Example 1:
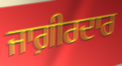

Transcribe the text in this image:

ਜਾਗ਼ੀਰਦਾਰ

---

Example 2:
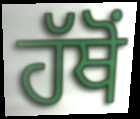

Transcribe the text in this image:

ਹੱਥੋਂ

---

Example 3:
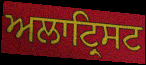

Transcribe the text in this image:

ਅਲਾਟ੍ਰਿਸਟ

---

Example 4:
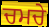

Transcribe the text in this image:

ਚਮਚੇ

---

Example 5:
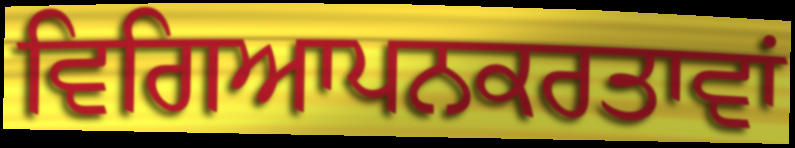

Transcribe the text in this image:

ਵਿਗਿਆਪਨਕਰਤਾਵਾਂ